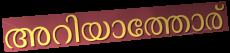
അറിയാത്തോര്